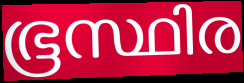
ഭൂസ്ഥിര